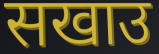
सखाउ